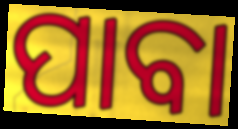
ପାବା